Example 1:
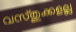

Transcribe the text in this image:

വസ്തുക്കളല്ല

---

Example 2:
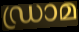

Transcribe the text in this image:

ഡ്രാമ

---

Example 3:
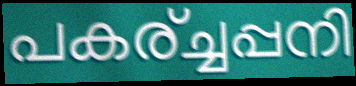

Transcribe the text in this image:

പകര്ച്ചപ്പനി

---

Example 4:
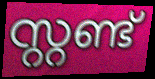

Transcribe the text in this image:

സ്റ്റണ്ട്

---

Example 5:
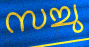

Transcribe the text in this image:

സച്ചു